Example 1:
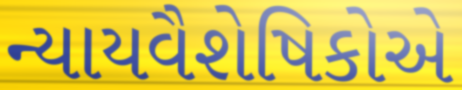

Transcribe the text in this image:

ન્યાયવૈશેષિકોએ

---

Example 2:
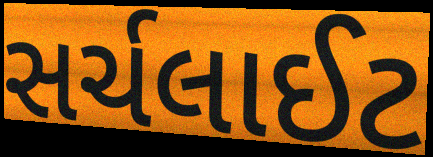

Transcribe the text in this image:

સર્ચલાઈટ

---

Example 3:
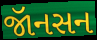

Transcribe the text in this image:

જૉનસન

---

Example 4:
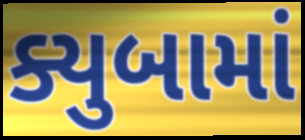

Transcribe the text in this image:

ક્યુબામાં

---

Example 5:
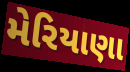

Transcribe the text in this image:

મેરિયાણા